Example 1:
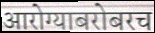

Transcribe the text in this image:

आरोग्याबरोबरच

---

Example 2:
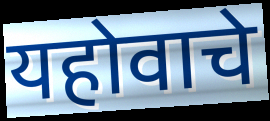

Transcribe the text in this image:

यहोवाचे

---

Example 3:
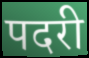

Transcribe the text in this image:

पदरी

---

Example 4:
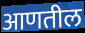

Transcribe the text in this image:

आणतील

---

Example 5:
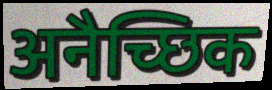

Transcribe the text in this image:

अनैच्छिक